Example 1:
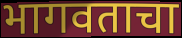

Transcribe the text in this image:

भागवताचा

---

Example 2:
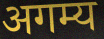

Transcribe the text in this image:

अगम्य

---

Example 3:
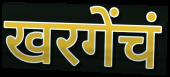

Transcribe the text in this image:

खरगेंचं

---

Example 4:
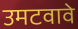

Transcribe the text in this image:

उमटवावे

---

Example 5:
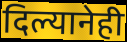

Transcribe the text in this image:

दिल्यानेही